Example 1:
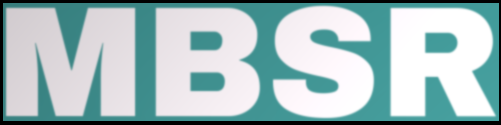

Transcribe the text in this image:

MBSR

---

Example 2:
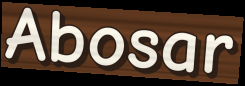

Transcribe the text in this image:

Abosar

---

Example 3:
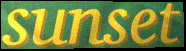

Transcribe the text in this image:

sunset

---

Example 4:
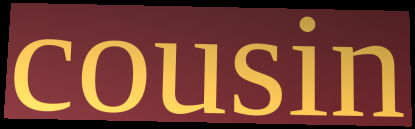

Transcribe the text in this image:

cousin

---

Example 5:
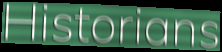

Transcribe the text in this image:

Historians